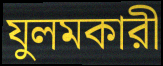
যুলমকারী